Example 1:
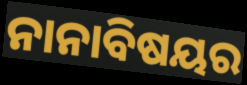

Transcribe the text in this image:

ନାନାବିଷୟର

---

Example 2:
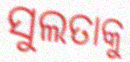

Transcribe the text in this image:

ସୁଲତାକୁ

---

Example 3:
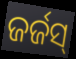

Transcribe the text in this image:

ଜର୍ଜସ୍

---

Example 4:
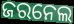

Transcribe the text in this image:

ଜରନେଲ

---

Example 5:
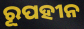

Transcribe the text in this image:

ରୂପହୀନ